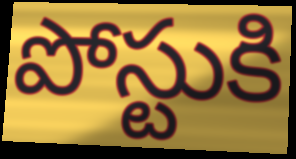
పోస్టుకి